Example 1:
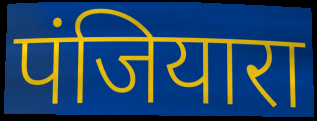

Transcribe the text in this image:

पंजियारा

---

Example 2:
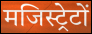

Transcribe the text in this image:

मजिस्ट्रेटों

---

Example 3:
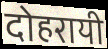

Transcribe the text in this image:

दोहरायी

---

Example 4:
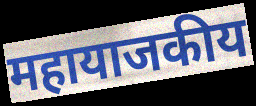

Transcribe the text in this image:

महायाजकीय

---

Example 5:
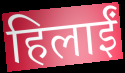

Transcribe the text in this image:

हिलाईं